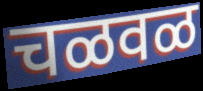
चळवळ